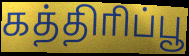
கத்திரிப்பூ